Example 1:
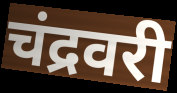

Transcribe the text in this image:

चंद्रवरी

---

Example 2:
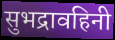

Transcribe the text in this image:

सुभद्रावहिनी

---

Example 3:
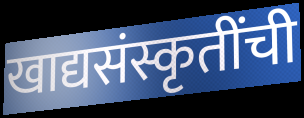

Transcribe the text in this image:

खाद्यसंस्कृतींची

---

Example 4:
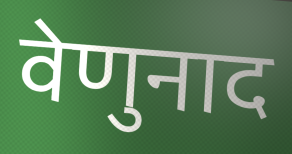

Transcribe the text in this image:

वेणुनाद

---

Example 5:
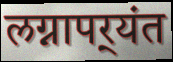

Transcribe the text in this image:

लग्नापर्यंत